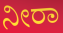
ನೀರಾ